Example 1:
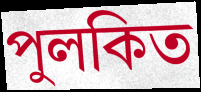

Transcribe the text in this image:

পুলকিত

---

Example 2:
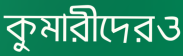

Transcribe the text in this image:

কুমারীদেরও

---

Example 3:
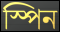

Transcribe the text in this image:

স্পিন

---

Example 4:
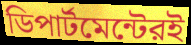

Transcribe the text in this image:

ডিপার্টমেন্টেরই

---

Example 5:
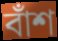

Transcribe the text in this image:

বাঁশ